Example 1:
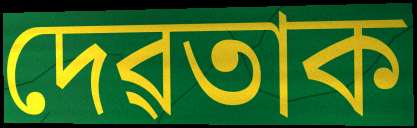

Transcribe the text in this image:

দেৱতাক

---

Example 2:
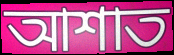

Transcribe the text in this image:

আশাত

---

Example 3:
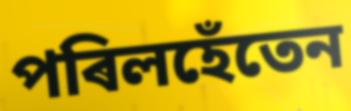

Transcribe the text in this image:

পৰিলহেঁতেন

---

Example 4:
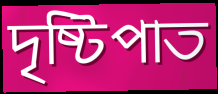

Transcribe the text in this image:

দৃষ্টিপাত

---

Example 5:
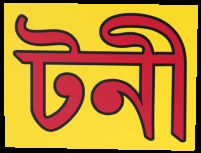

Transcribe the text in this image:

টনী